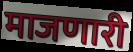
माजणारी